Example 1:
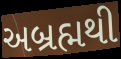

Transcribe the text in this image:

અબ્રહ્મથી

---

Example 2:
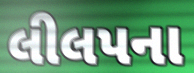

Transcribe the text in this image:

લીલપના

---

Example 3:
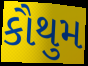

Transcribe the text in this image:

કૌથુમ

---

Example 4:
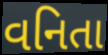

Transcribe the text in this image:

વનિતા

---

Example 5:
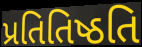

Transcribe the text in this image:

પ્રતિતિષ્ઠતિ